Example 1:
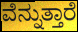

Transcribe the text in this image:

ವೆನ್ನುತ್ತಾರೆ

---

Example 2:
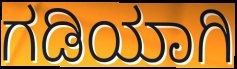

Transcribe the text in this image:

ಗಡಿಯಾಗಿ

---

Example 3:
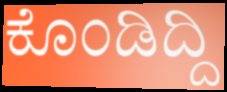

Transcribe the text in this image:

ಕೊಂಡಿದ್ದಿ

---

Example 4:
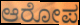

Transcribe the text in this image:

ಆರೋಪ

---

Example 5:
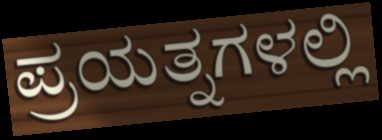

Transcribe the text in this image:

ಪ್ರಯತ್ನಗಳಲ್ಲಿ